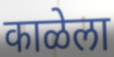
काळेला